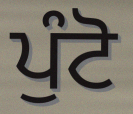
ਪੁੰਟੋ